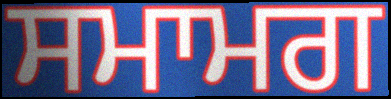
ਸਮਾਮਗ